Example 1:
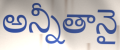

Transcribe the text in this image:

అన్నీతానై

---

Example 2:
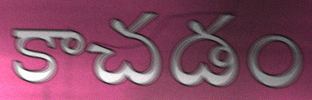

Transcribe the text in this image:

కాచడం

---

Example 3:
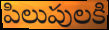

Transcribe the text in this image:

పిలుపులకి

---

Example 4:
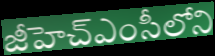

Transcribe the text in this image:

జీహెచ్ఎంసీలోని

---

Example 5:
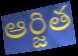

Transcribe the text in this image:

ఆర్జిత